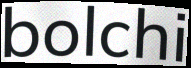
bolchi